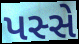
પસ્સે